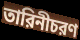
তারিনীচরণ